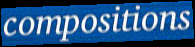
compositions